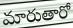
మారుతారో